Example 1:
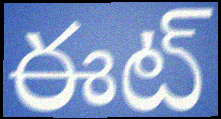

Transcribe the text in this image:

ఈట్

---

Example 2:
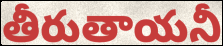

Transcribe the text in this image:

తీరుతాయనీ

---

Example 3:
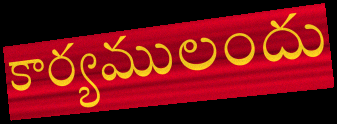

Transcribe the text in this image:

కార్యములందు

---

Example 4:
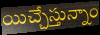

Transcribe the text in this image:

యిచ్చేస్తున్నాం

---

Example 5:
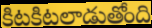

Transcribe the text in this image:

కిటకిటలాడుతోంది